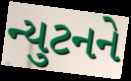
ન્યુટનને